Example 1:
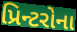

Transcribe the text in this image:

પ્રિન્ટરોના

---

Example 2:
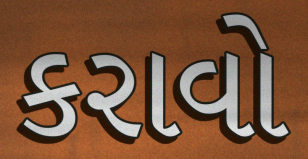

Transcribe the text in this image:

કરાવો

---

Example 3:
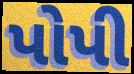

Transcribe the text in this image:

પોપી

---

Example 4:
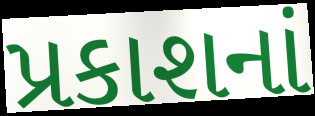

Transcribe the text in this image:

પ્રકાશનાં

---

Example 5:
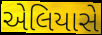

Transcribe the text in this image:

એલિયાસે